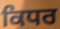
ਕਿਧਰ